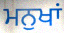
ਮਨੁਖਾਂ